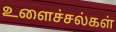
உளைச்சல்கள்